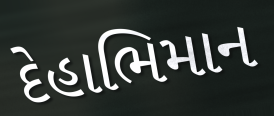
દેહાભિમાન